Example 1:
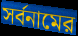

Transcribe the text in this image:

সর্বনামের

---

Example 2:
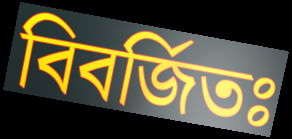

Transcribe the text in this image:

বিবর্জিতঃ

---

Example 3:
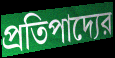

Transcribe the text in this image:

প্রতিপাদ্যের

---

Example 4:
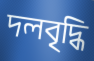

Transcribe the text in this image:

দলবৃদ্ধি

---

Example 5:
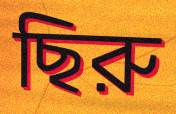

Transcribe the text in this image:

ছিরু